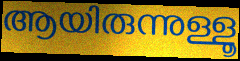
ആയിരുന്നുള്ളൂ